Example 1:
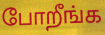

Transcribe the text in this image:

போறீங்க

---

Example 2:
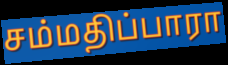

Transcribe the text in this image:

சம்மதிப்பாரா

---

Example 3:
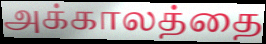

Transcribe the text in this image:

அக்காலத்தை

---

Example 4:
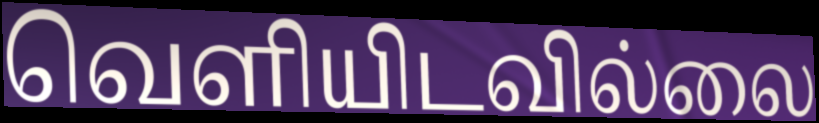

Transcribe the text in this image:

வெளியிடவில்லை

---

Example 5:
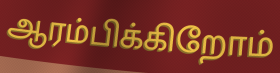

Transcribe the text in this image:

ஆரம்பிக்கிறோம்